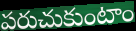
పరుచుకుంటాం